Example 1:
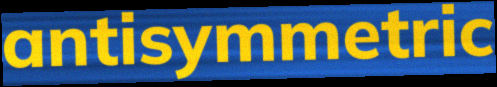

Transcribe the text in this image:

antisymmetric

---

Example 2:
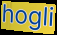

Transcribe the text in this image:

hogli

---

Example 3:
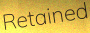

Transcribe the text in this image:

Retained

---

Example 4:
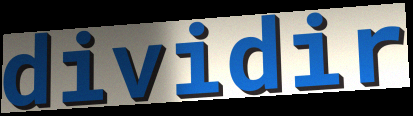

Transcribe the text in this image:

dividir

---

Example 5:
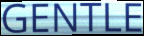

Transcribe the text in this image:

GENTLE